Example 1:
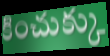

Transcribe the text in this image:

కించుక్కు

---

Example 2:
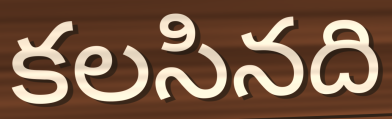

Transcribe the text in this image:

కలసినది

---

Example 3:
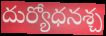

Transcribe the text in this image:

దుర్యోధనశ్చ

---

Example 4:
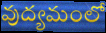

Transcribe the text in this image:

వుద్యమంలో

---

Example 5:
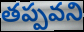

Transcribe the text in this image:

తప్పవని